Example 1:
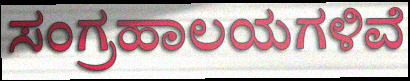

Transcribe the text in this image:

ಸಂಗ್ರಹಾಲಯಗಳಿವೆ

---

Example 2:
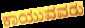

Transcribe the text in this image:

ಕಾಯುವವರು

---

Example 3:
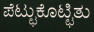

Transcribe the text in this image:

ಪೆಟ್ಟುಕೊಟ್ಟಿತು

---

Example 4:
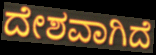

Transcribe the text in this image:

ದೇಶವಾಗಿದೆ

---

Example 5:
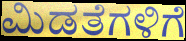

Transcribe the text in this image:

ಮಿಡತೆಗಳಿಗೆ